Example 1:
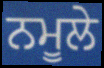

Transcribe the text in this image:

ਨਮੂਲੇ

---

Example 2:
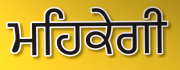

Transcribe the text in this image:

ਮਹਿਕੇਗੀ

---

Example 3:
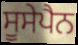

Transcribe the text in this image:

ਸੂਸੇਪੈਨ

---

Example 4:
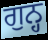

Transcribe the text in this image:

ਗੁਨ੍ਹ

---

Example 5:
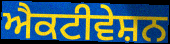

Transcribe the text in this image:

ਐਕਟੀਵੇਸ਼ਨ